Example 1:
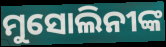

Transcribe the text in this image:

ମୁସୋଲିନୀଙ୍କ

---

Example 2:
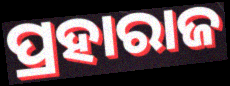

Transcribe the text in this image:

ପ୍ରହାରାଜ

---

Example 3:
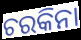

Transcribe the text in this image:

ଚରକିନା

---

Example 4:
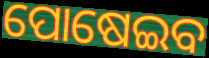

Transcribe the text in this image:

ପୋଷେଇବ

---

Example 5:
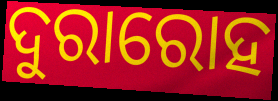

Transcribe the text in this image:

ଦୁରାରୋହ